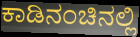
ಕಾಡಿನಂಚಿನಲ್ಲಿ